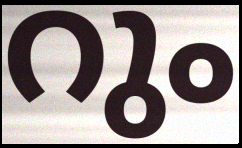
റും